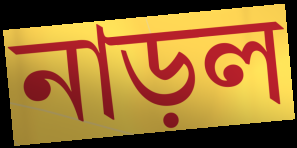
নাড়ল